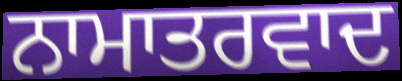
ਨਾਮਾਤਰਵਾਦ